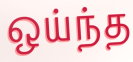
ஒய்ந்த